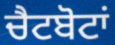
ਚੈਟਬੋਟਾਂ